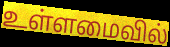
உள்ளமைவில்